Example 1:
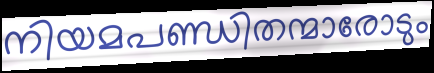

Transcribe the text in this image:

നിയമപണ്ഡിതന്മാരോടും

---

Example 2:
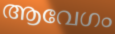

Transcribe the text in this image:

ആവേഗം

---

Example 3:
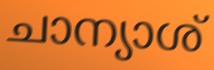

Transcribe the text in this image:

ചാന്യാശ്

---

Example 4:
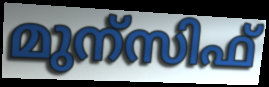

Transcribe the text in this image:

മുന്സിഫ്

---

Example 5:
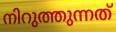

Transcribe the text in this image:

നിറുത്തുന്നത്